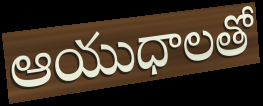
ఆయుధాలతో